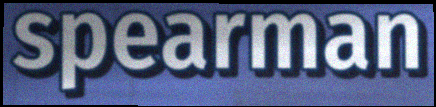
spearman